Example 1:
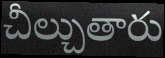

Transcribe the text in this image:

చీల్చుతారు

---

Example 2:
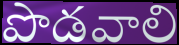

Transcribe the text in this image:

పొడవాలి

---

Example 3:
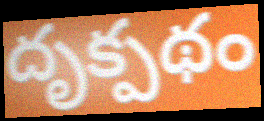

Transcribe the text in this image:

దృక్పథం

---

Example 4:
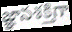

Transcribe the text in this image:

జ్ఞానశక్తిగా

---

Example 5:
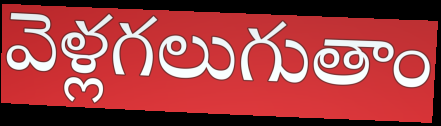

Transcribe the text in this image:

వెళ్లగలుగుతాం